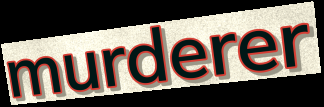
murderer